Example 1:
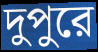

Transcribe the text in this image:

দুপুরে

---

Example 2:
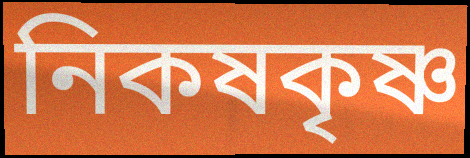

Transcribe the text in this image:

নিকষকৃষ্ণ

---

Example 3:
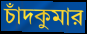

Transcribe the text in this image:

চাঁদকুমার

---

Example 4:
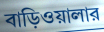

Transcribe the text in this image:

বাড়িওয়ালার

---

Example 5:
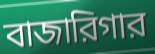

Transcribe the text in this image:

বাজারিগার